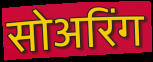
सोअरिंग